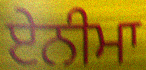
ਏਨੀਮਾ